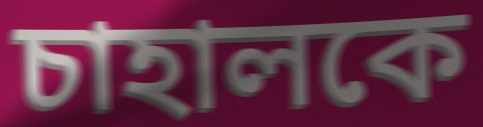
চাহালকে